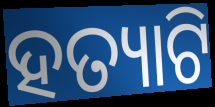
ହତ୍ୟାଟି